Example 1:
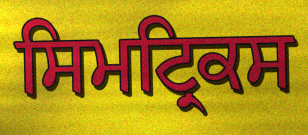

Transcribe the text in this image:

ਸਿਮਟ੍ਰਿਕਸ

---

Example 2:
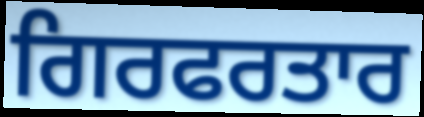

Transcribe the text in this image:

ਗਿਰਫਰਤਾਰ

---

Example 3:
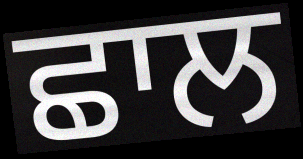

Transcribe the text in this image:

ਛਾਲ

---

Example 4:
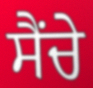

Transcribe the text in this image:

ਸੈਂਚੇ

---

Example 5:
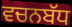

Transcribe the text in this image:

ਵਚਨਬੱਧ